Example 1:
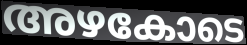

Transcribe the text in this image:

അഴകോടെ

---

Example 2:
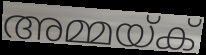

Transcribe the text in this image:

അമ്മയ്ക്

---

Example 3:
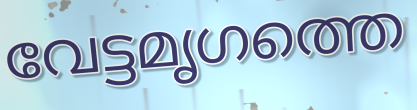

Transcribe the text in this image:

വേട്ടമൃഗത്തെ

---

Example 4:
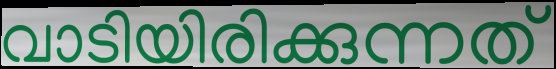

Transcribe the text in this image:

വാടിയിരിക്കുന്നത്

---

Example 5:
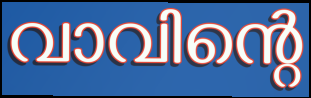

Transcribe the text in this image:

വാവിന്റെ